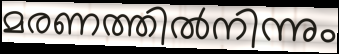
മരണത്തിൽനിന്നും